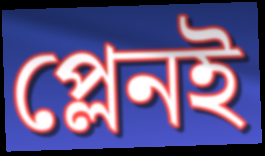
প্লেনই